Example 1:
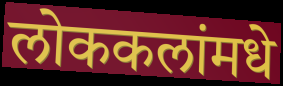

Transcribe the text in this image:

लोककलांमधे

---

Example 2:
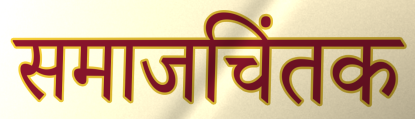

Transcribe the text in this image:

समाजचिंतक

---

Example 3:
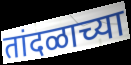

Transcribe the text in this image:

तांदळाच्या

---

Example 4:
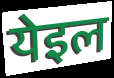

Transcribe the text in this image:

येइल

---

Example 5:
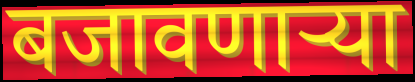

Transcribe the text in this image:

बजावणाऱ्या